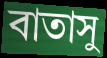
বাতাসু